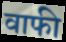
वाफी